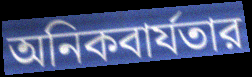
অনিকবার্যতার